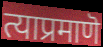
त्याप्रमाणॆ